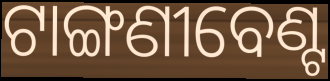
ଟାଙ୍ଗଣୀବେଣ୍ଟ